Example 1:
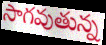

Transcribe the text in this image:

సాగవుతున్న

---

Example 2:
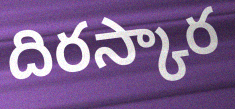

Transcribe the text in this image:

దిరస్కార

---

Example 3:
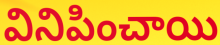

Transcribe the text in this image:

వినిపించాయి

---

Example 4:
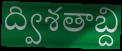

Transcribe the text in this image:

ద్విశతాబ్ది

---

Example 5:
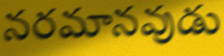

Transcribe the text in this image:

నరమానవుడు